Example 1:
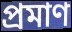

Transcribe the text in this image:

প্রমাণ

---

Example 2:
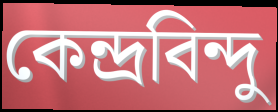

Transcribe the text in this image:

কেন্দ্রবিন্দু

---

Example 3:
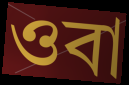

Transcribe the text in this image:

ওবা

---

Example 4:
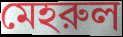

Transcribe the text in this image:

মেহরুল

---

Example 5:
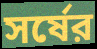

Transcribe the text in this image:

সর্ষের